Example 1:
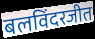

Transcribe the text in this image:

बलविंदरजीत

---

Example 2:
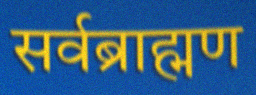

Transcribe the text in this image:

सर्वब्राह्मण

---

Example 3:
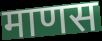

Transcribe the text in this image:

माणस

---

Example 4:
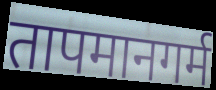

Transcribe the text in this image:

तापमानगर्म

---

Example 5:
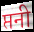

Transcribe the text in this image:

प्तनी